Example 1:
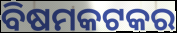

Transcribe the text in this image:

ବିଷମକଟକର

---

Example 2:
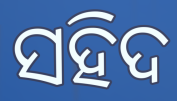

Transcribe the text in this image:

ସହିଦ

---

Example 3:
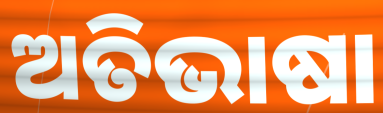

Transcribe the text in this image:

ଅତିଭାଷା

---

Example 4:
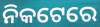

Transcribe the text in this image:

ନିକଟେରେ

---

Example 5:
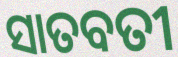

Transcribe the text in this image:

ସାତବତୀ